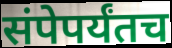
संपेपर्यंतच